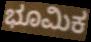
ಭೂಮಿಕ